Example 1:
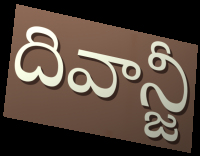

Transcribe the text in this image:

దివాన్జీ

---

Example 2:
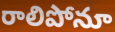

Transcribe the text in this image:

రాలిపోనూ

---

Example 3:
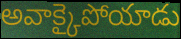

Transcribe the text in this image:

అవాక్కైపోయాడు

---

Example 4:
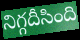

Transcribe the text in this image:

నిగ్గదీసింది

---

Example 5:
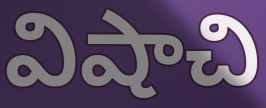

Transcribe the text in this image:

విషాచి